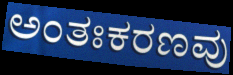
ಅಂತಃಕರಣವು